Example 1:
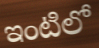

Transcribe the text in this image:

ఇంటిలో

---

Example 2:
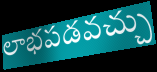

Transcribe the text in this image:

లాభపడవచ్చు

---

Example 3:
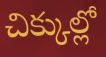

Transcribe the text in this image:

చిక్కుల్లో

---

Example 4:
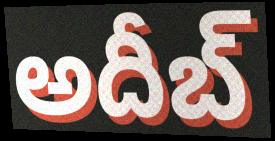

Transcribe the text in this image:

అదీబ్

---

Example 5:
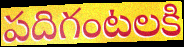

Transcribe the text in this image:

పదిగంటలకి